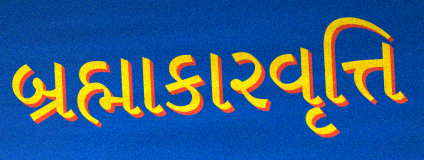
બ્રહ્માકારવૃત્તિ